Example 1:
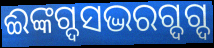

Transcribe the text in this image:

ଈଙ୍କଗ୍ଦସଦ୍ଭରଗ୍ଦଗ୍ଦ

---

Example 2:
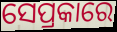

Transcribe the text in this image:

ସେପ୍ରକାରେ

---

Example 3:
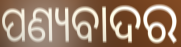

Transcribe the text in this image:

ପଣ୍ୟବାଦର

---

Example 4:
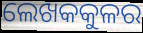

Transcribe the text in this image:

ଲେଖକକୁଳର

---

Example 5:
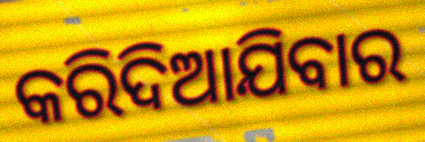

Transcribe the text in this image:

କରିଦିଆଯିବାର